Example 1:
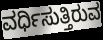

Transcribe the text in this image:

ವರ್ಧಿಸುತ್ತಿರುವ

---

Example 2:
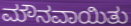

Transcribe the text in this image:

ಮೌನವಾಯಿತು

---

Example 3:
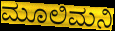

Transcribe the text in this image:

ಮೂಲಿಮನಿ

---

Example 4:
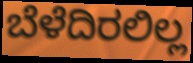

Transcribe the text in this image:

ಬೆಳೆದಿರಲಿಲ್ಲ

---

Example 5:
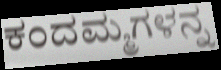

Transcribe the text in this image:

ಕಂದಮ್ಮಗಳನ್ನ